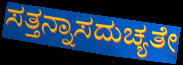
ಸತ್ತನ್ನಾಸದುಚ್ಯತೇ